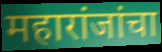
महारांजांचा